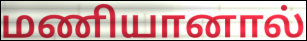
மணியானால்